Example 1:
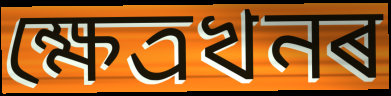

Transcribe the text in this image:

ক্ষেত্ৰখনৰ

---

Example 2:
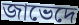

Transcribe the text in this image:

জাভেদে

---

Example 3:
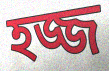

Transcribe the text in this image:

হজ্জ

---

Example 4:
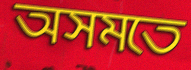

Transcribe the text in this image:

অসমতে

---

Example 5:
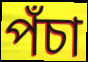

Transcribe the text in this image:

পঁচা